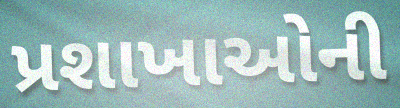
પ્રશાખાઓની